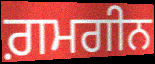
ਗ਼ਮਗੀਨ